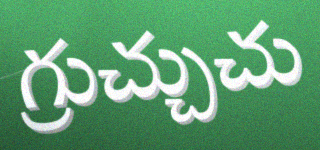
గ్రుచ్చుచు